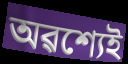
অৱশ্যেই